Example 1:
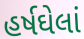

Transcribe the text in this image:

હર્ષઘેલાં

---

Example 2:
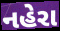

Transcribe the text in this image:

નહેરા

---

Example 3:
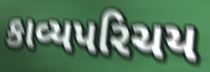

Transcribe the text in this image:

કાવ્યપરિચય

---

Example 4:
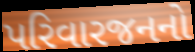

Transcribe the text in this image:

પરિવારજનનો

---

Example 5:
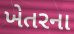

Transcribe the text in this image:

ખેતરના